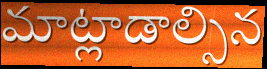
మాట్లాడాల్సిన